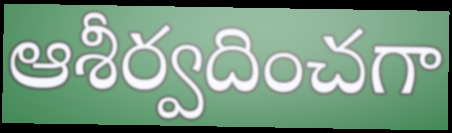
ఆశీర్వదించగా